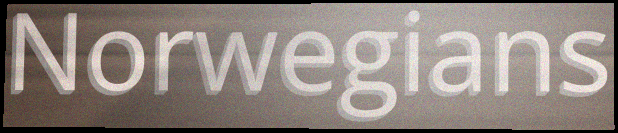
Norwegians